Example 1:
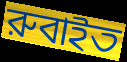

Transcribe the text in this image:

রুবাইত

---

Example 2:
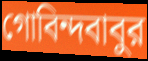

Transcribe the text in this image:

গোবিন্দবাবুর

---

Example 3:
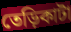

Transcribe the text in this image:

তেড়িকাটা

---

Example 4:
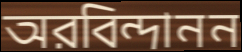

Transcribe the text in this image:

অরবিন্দানন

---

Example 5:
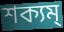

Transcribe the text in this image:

শক্যম্